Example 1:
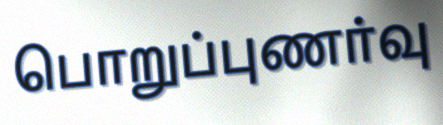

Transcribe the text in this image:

பொறுப்புணர்வு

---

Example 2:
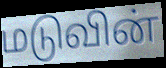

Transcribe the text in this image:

மடுவின்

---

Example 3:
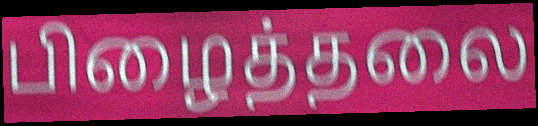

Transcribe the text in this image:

பிழைத்தலை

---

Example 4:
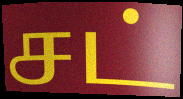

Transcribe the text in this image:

சட்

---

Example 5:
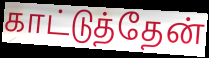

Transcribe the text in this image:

காட்டுத்தேன்